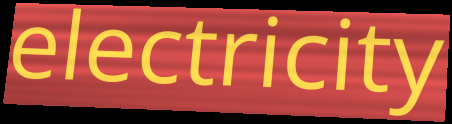
electricity